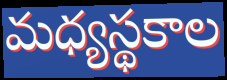
మధ్యస్థకాల